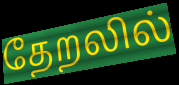
தேறலில்